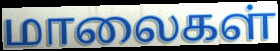
மாலைகள்